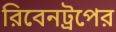
রিবেনট্রপের